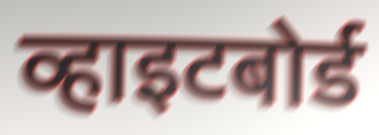
व्हाइटबोर्ड